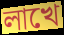
লাখে